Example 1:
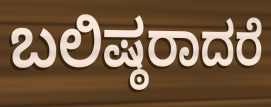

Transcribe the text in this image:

ಬಲಿಷ್ಠರಾದರೆ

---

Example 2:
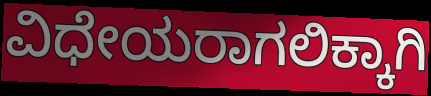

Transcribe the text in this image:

ವಿಧೇಯರಾಗಲಿಕ್ಕಾಗಿ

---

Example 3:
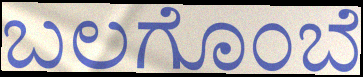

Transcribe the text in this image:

ಬಲಗೊಂಬೆ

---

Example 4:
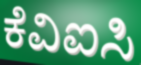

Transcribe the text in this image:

ಕೆವಿಐಸಿ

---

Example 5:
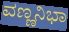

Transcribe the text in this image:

ವಣ್ಣನಿಭಾ